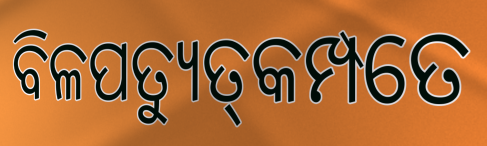
ବିଳପତ୍ୟୁତ୍‌କମ୍ପତେ